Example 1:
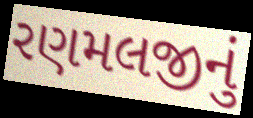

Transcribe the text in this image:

રણમલજીનું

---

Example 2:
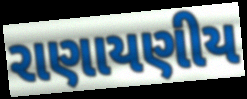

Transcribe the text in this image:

રાણાયણીય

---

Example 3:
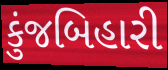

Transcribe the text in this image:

કુંજબિહારી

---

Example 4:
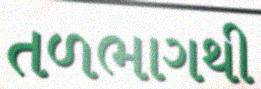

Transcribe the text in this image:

તળભાગથી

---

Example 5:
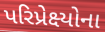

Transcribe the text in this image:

પરિપ્રેક્ષ્યોના